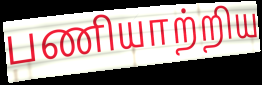
பணியாற்றிய